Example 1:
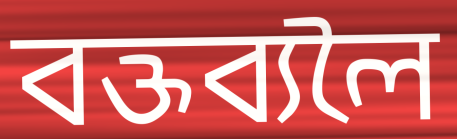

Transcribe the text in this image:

বক্তব্যলৈ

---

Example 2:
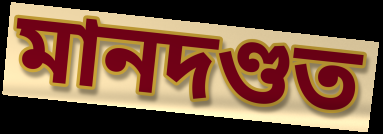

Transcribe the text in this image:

মানদণ্ডত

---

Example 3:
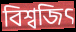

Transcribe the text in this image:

বিশ্বজিৎ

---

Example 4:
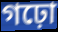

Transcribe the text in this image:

গঢ়ো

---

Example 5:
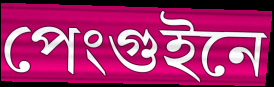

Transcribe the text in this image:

পেংগুইনে